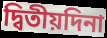
দ্বিতীয়দিনা